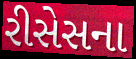
રીસેસના